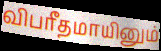
விபரீதமாயினும்